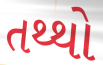
તથ્થો